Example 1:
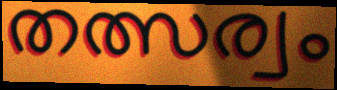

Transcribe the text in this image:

തത്സര്വം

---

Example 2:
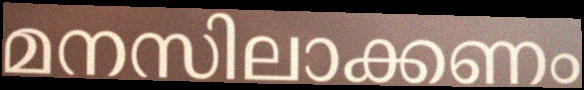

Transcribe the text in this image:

മനസിലാക്കണം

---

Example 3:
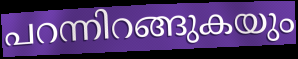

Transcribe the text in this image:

പറന്നിറങ്ങുകയും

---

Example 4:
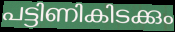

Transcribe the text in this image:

പട്ടിണികിടക്കും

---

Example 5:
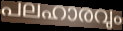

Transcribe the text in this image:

പലഹാരവും